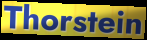
Thorstein